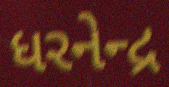
ધરનેન્દ્ર